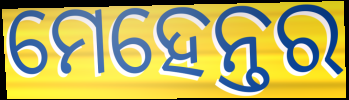
ମେହେନ୍ତର